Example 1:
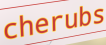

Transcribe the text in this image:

cherubs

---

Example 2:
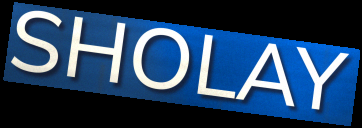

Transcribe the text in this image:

SHOLAY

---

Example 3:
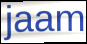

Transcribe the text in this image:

jaam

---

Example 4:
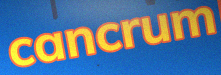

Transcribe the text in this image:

cancrum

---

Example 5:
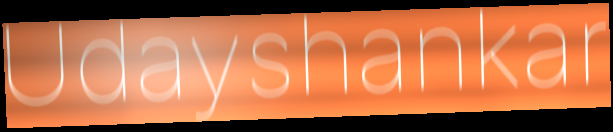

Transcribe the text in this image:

Udayshankar